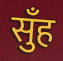
सुँह